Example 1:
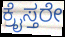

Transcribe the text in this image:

ಕ್ರೈಸ್ತರೇ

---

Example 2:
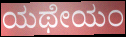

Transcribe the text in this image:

ಯಥೇಯಂ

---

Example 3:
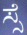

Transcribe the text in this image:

ಸ್ಸೆ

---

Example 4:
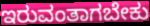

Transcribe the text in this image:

ಇರುವಂತಾಗಬೇಕು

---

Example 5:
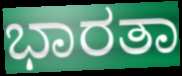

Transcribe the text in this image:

ಭಾರತಾ